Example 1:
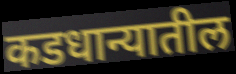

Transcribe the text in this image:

कडधान्यातील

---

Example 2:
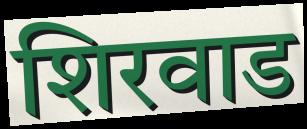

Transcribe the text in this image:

शिरवाड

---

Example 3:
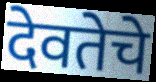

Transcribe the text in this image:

देवतेचे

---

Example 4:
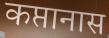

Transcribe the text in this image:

कप्तानास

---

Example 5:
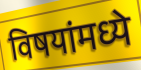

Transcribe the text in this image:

विषयांमध्ये